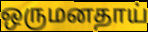
ஒருமனதாய்